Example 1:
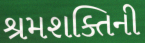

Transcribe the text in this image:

શ્રમશક્તિની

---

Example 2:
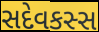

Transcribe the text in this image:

સદેવકસ્સ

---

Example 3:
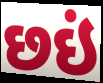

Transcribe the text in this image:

છઇં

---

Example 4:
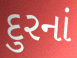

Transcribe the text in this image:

દુરનાં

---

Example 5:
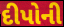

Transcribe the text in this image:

દીપોની